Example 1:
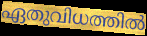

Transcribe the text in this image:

ഏതുവിധത്തിൽ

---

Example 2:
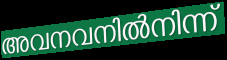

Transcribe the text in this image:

അവനവനിൽനിന്ന്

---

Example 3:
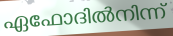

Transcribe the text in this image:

ഏഫോദിൽനിന്ന്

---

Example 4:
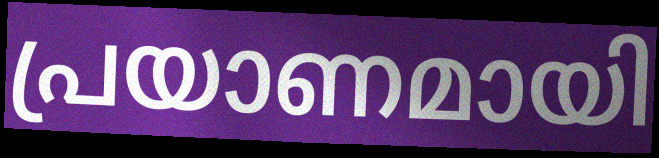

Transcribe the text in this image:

പ്രയാണമായി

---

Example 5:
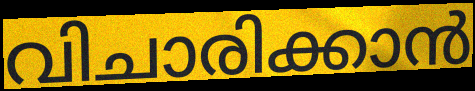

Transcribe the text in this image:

വിചാരിക്കാൻ